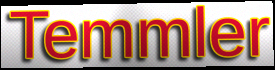
Temmler